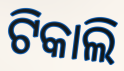
ଟିକାଲି